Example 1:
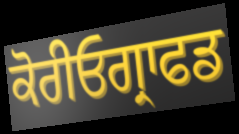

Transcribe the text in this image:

ਕੋਰੀਓਗ੍ਰਾਫਡ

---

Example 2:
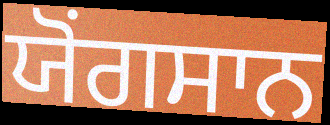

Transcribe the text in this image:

ਯੋਂਗਸਾਨ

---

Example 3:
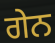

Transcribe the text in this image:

ਗੇਨ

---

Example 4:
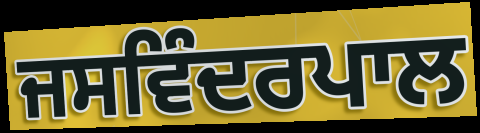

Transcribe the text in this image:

ਜਸਵਿੰਦਰਪਾਲ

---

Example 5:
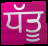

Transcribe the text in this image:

ਧੱਤੂ